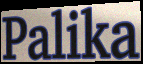
Palika